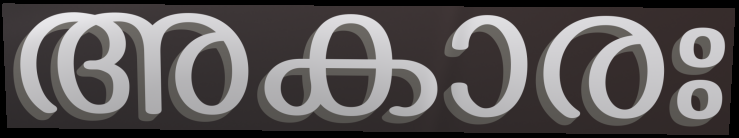
അകാരഃ